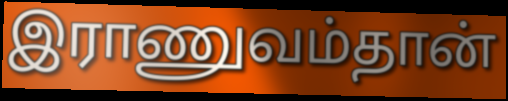
இராணுவம்தான்